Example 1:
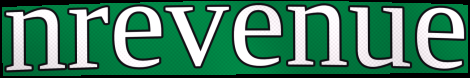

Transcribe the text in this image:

nrevenue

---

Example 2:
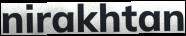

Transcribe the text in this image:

nirakhtan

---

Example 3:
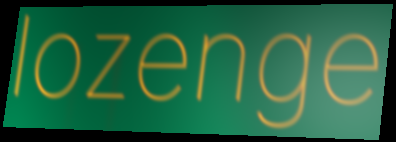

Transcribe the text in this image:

lozenge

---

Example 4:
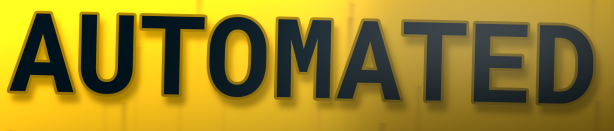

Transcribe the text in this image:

AUTOMATED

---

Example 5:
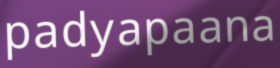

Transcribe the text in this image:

padyapaana